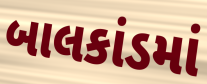
બાલકાંડમાં